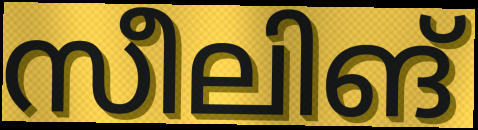
സീലിങ്